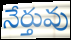
నేర్తువు